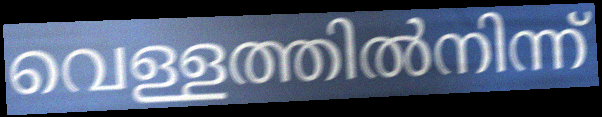
വെള്ളത്തിൽനിന്ന്